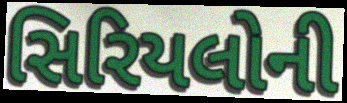
સિરિયલોની